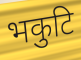
भकुटि